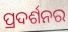
ପ୍ରଦର୍ଶନର